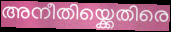
അനീതിയ്ക്കെതിരെ